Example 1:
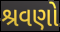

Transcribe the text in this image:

શ્રવણો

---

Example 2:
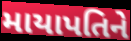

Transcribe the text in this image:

માયાપતિને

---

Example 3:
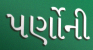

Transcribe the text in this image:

પર્ણોની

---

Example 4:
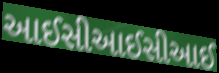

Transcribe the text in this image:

આઈસીઆઈસીઆઈ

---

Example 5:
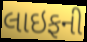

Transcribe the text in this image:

લાઇફની